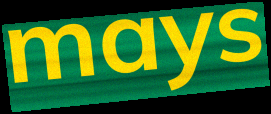
mays